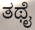
ತಥೈ